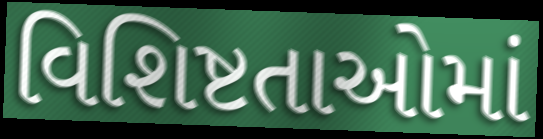
વિશિષ્ટતાઓમાં